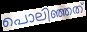
പൊലിഞ്ഞത്